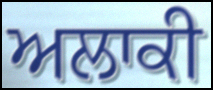
ਅਲਾਕੀ